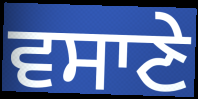
ਵਸਾਣੇ